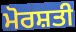
ਮੋਰਸ਼ਤੀ